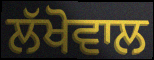
ਲੱਖੋਵਾਲ